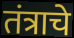
तंत्राचे